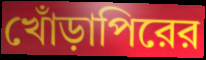
খোঁড়াপিরের